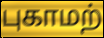
புகாமற்